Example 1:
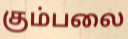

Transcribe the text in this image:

கும்பலை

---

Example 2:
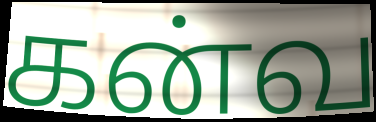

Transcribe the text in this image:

கன்வ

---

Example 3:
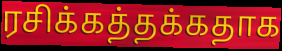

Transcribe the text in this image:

ரசிக்கத்தக்கதாக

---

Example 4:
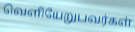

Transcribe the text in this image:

வெளியேறுபவர்கள்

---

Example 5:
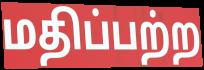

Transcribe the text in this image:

மதிப்பற்ற